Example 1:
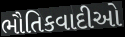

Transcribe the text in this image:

ભૌતિકવાદીઓ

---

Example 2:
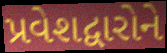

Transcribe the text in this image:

પ્રવેશદ્વારોને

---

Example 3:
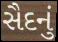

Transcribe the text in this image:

સૈદનું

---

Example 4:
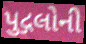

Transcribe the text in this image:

પુદ્ગલોની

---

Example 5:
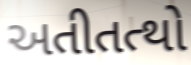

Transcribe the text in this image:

અતીતત્થો